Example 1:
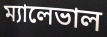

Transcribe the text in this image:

ম্যালেভাল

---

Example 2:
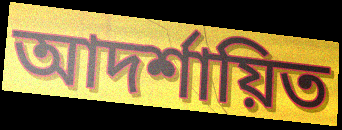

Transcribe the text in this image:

আদর্শায়িত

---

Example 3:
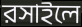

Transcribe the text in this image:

রসাইলে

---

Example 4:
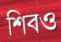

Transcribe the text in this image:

শিবও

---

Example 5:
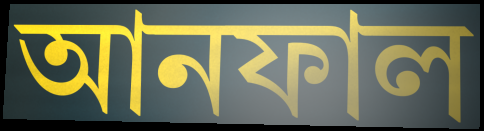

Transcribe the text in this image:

আনফাল